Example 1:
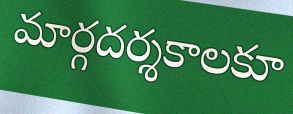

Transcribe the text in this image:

మార్గదర్శకాలకూ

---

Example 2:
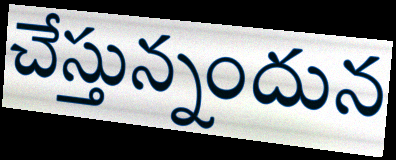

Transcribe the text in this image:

చేస్తున్నందున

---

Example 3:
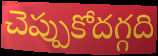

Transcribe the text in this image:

చెప్పుకోదగ్గది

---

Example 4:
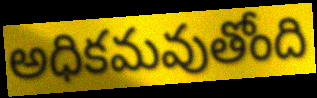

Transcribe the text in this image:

అధికమవుతోంది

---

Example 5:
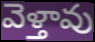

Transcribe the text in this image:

వెళ్తావు